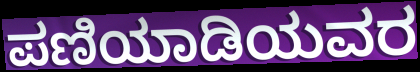
ಪಣಿಯಾಡಿಯವರ